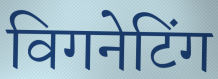
विगनेटिंग